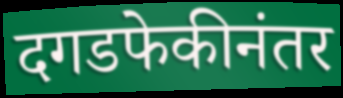
दगडफेकीनंतर